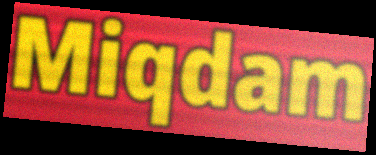
Miqdam